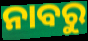
ନାବରୁ